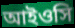
আইওসি